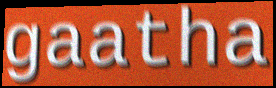
gaatha